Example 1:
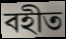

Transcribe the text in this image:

বহীত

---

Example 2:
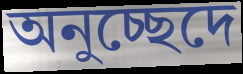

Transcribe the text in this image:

অনুচ্ছেদে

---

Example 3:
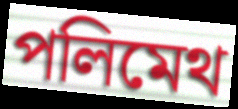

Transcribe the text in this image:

পলিমেথ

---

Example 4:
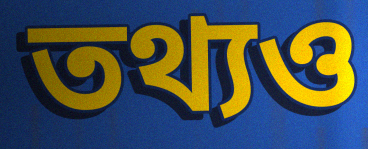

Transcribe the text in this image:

তথ্যও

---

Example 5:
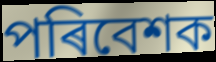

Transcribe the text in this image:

পৰিবেশক